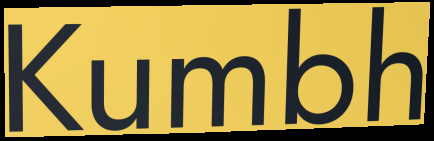
Kumbh